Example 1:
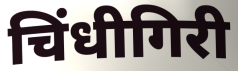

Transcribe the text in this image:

चिंधीगिरी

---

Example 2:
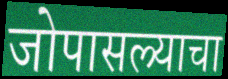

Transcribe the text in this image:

जोपासल्याचा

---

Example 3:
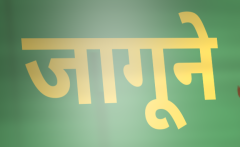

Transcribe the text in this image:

जागूने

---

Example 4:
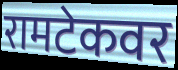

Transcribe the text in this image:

रामटेकवर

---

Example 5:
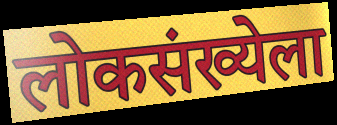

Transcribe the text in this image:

लोकसंख्येला